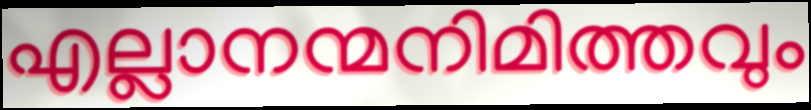
എല്ലാനന്മനിമിത്തവും